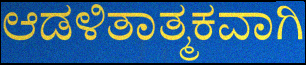
ಆಡಳಿತಾತ್ಮಕವಾಗಿ